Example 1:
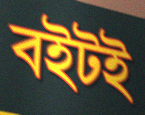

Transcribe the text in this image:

বইটই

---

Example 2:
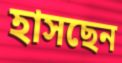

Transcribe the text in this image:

হাসছেন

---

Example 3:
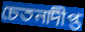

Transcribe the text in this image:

চেতনাদীপ্ত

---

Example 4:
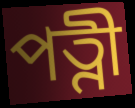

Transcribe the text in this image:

পত্নী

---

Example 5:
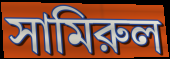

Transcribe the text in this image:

সামিরুল